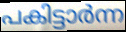
പകിട്ടാർന്ന